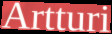
Artturi